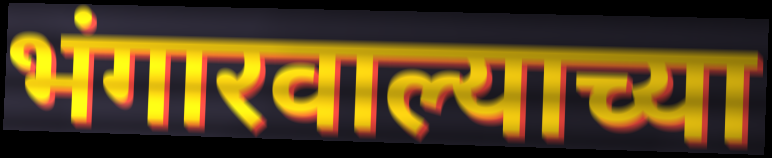
भंगारवाल्याच्या